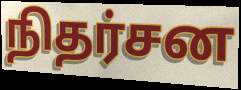
நிதர்சன